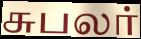
சுபலர்